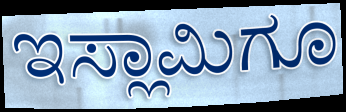
ಇಸ್ಲಾಮಿಗೂ